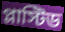
প্লাস্টিড